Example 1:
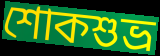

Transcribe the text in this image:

শোকশুভ্র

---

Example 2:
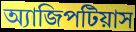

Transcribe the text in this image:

অ্যাজিপটিয়াস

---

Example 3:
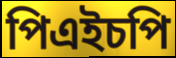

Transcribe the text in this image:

পিএইচপি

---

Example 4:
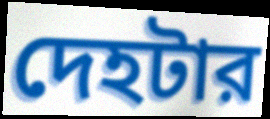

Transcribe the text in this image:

দেহটার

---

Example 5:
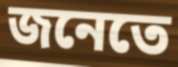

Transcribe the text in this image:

জনেতে